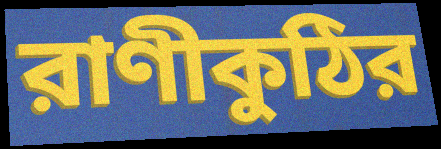
রাণীকুঠির